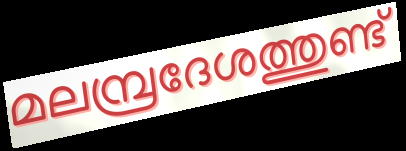
മലമ്പ്രദേശത്തുണ്ട്